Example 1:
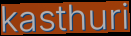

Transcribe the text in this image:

kasthuri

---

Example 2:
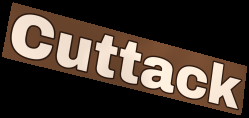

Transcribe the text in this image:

Cuttack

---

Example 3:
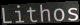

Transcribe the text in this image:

Lithos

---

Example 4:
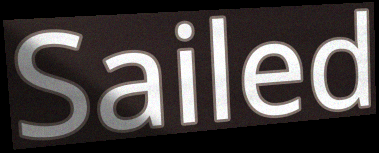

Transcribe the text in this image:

Sailed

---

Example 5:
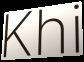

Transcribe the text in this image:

Khi